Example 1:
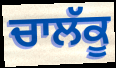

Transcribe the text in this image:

ਚਾਲੱਕੂ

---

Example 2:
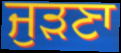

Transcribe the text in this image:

ਜੁੜਣਾ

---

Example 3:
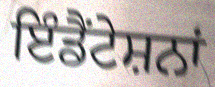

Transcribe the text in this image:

ਇੰਡੈਂਟੇਸ਼ਨਾਂ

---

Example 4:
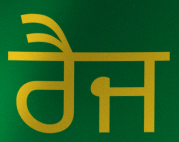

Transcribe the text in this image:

ਰੈਜ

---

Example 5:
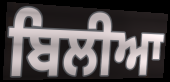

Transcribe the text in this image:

ਬਿਲੀਆ